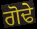
ਗੋਢੇ